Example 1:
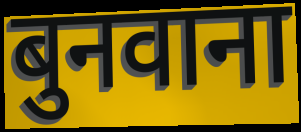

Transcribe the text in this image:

बुनवाना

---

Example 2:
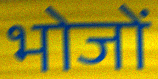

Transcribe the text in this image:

भोजों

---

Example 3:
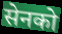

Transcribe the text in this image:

सेनको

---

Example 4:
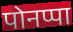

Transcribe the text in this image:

पोनप्पा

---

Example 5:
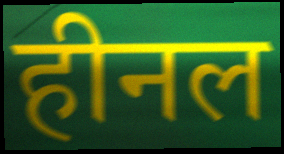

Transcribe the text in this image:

हीनल